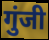
गुंजी